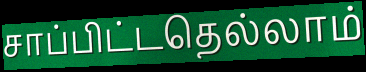
சாப்பிட்டதெல்லாம்